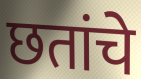
छतांचे